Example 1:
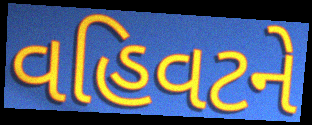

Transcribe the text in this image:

વહિવટને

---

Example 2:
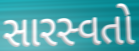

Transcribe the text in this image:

સારસ્વતો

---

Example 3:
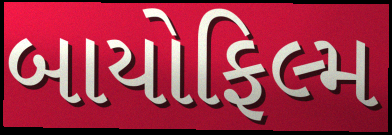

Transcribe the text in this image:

બાયોફિલ્મ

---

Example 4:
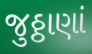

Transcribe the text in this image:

જુઠ્ઠાણાં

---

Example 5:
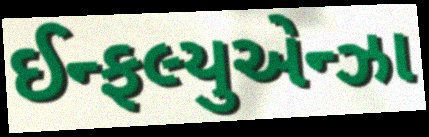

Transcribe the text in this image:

ઈન્ફલ્યુએન્ઝા